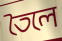
তৈলে